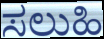
ಸಲುಹಿ